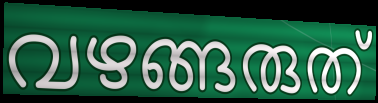
വഴങ്ങരുത്